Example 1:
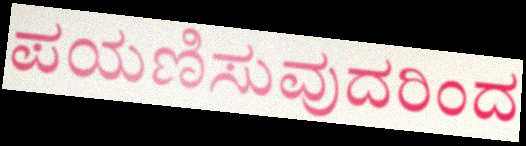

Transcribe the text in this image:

ಪಯಣಿಸುವುದರಿಂದ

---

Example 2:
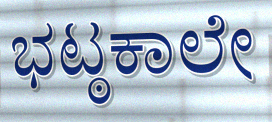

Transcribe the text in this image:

ಭಟ್ಠಕಾಲೇ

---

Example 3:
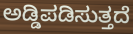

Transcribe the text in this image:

ಅಡ್ಡಿಪಡಿಸುತ್ತದೆ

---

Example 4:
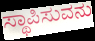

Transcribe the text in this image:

ಸ್ಥಾಪಿಸುವನು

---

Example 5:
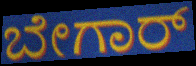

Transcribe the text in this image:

ಬೇಗಾರ್